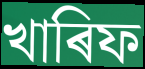
খাৰিফ